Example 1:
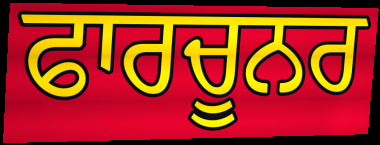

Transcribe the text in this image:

ਫਾਰਚੂਨਰ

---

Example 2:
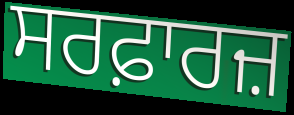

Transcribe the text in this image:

ਸਰਫ਼ਾਰਜ਼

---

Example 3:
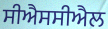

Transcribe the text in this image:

ਸੀਐਸਸੀਐਲ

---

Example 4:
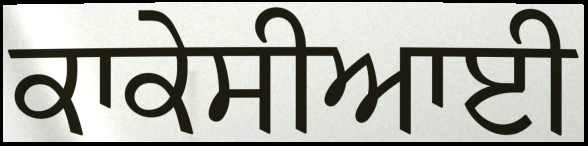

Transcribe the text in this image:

ਕਾਕੇਸੀਆਈ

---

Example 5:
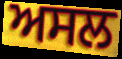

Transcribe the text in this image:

ਅਸਲ